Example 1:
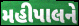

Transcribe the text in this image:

મહીપાલને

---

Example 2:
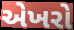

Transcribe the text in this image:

એખરો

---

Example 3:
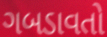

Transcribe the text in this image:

ગબડાવતો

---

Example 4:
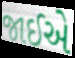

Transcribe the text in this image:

જાઈએ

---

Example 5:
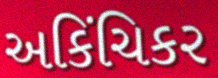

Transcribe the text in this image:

અકિંચિકર